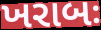
ખરાબઃ